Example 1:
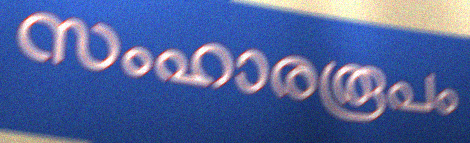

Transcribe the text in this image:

സംഹാരരൂപം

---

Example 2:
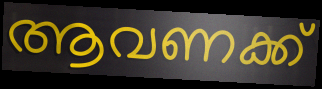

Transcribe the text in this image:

ആവണക്ക്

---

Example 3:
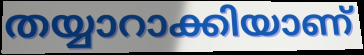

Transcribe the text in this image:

തയ്യാറാക്കിയാണ്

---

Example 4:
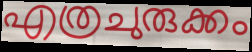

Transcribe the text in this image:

എത്രചുരുക്കം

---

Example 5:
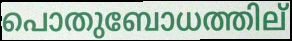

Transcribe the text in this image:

പൊതുബോധത്തില്